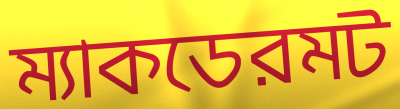
ম্যাকডেরমট